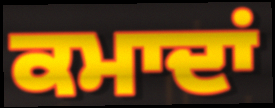
ਕਮਾਦਾਂ